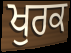
ਖੁਰਕ